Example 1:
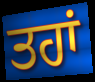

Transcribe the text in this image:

ਤਹਾਂ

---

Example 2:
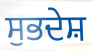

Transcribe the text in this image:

ਸੁਭਦੇਸ਼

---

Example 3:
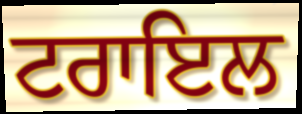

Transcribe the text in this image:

ਟਰਾਇਲ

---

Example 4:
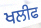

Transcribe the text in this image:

ਖਲੀਫ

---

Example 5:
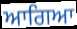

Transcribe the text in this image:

ਆਗਿਆ